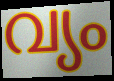
വ്യം